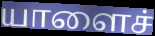
யாளைச்